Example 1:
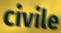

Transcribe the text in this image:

civile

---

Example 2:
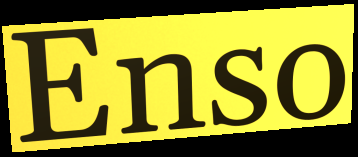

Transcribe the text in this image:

Enso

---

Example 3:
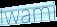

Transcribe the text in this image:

lwami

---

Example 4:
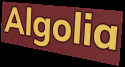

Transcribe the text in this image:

Algolia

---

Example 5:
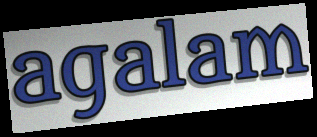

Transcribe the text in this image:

agalam